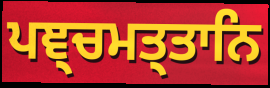
ਪਞ੍ਚਮਤ੍ਤਾਨਿ